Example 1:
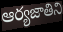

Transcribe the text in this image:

ఆర్యజాతిని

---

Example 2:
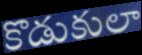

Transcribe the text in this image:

కొడుకులా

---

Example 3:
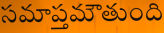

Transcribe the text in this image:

సమాప్తమౌతుంది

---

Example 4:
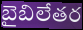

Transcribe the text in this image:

బైబిలేతర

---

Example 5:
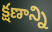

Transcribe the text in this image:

క్షణాన్ని